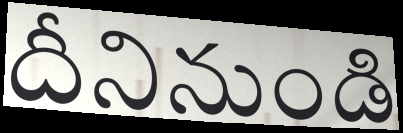
దీనినుండి